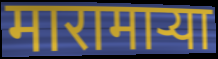
मारामाऱ्या